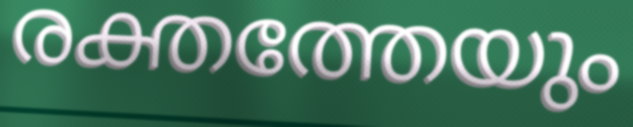
രക്തത്തേയും